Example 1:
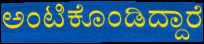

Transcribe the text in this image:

ಅಂಟಿಕೊಂಡಿದ್ದಾರೆ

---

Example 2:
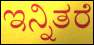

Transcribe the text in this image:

ಇನ್ನಿತರೆ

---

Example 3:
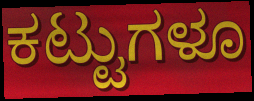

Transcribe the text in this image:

ಕಟ್ಟುಗಳೂ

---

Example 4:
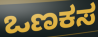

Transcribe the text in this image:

ಒಣಕಸ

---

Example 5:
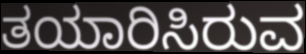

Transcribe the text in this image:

ತಯಾರಿಸಿರುವ